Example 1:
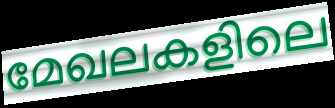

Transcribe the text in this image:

മേഖലകളിലെ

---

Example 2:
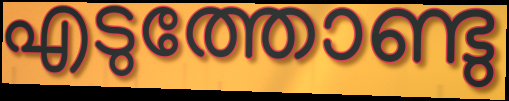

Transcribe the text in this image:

എടുത്തോണ്ടു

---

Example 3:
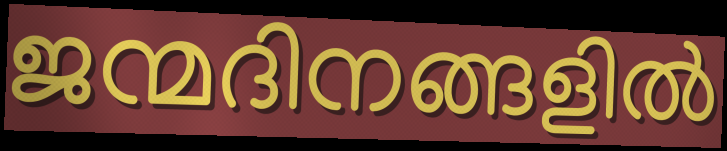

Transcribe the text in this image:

ജന്മദിനങ്ങളിൽ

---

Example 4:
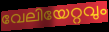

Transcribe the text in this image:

വേലിയേറ്റവും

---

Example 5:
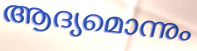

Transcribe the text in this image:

ആദ്യമൊന്നും